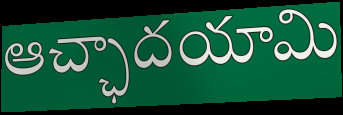
ఆచ్ఛాదయామి